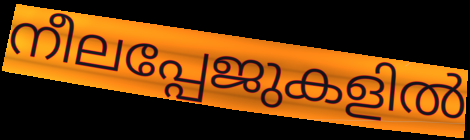
നീലപ്പേജുകളിൽ